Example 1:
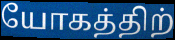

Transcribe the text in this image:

யோகத்திற்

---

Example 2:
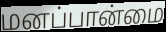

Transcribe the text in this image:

மனப்பான்மை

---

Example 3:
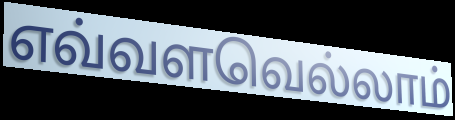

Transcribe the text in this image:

எவ்வளவெல்லாம்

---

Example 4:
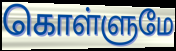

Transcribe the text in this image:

கொள்ளுமே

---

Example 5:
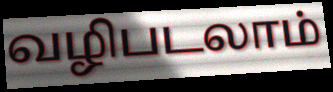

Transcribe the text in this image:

வழிபடலாம்